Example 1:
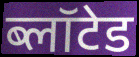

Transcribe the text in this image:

ब्लॉटेड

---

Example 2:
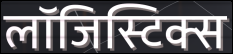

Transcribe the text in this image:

लॉजिस्टिक्स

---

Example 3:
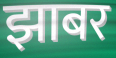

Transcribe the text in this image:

झाबर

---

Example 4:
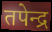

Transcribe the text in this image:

तपेन्द्र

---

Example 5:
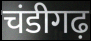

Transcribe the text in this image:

चंडीगढ़